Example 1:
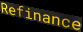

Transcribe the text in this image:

Refinance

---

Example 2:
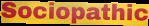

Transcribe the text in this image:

Sociopathic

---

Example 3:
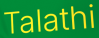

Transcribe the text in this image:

Talathi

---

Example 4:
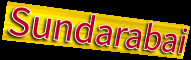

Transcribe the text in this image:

Sundarabai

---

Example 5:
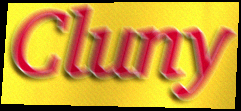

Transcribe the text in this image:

Cluny